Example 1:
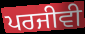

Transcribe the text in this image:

ਪਰਜੀਵੀ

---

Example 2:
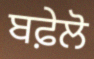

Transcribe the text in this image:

ਬਫ਼ੇਲੋ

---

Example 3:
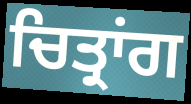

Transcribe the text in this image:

ਚਿਤ੍ਰਾਂਗ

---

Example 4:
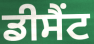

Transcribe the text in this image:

ਡੀਸੈਂਟ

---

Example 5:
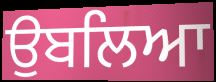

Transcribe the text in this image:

ਉਬਲਿਆ